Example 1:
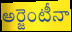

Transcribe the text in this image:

అర్జెంటీనా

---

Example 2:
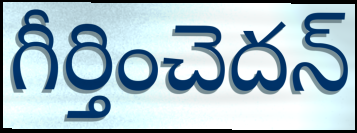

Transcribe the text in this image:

గీర్తించెదన్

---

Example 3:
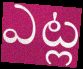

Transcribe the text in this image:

ఎట్ల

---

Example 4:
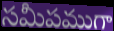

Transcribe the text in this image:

సమీపముగా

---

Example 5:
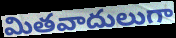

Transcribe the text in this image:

మితవాదులుగా